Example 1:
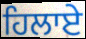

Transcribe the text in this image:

ਹਿਲਾਏ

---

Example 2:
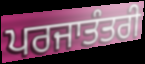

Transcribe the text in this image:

ਪਰਜਾਤੰਤਰੀ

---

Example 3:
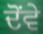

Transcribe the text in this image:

ਦੋਂਵੇ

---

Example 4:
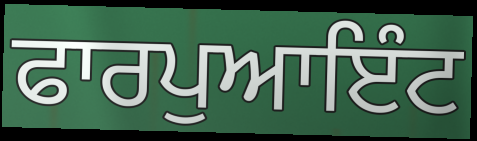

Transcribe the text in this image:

ਫਾਰਪੁਆਇੰਟ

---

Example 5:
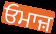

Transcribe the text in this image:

ਓਮਾਜ਼